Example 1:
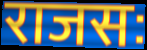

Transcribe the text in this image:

राजसः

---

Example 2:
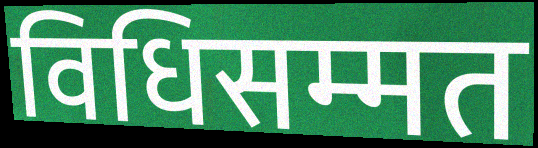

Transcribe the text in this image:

विधिसम्मत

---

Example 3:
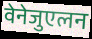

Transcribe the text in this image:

वेनेजुएलन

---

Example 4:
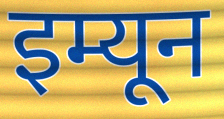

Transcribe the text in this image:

इम्‍यून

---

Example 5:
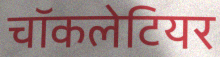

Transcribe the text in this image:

चॉकलेटियर